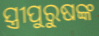
ସ୍ତ୍ରୀପୁରୁଷଙ୍କ